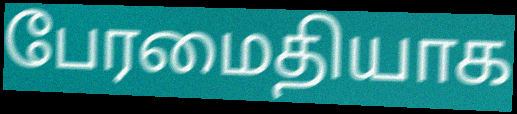
பேரமைதியாக